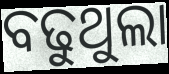
ବଢୁଥୁଲା